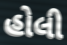
હોલી